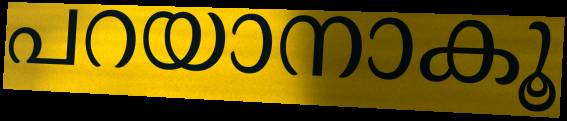
പറയാനാകൂ